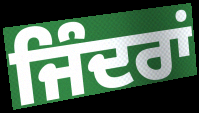
ਜਿੰਦਰਾਂ